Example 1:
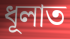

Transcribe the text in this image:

ধূলাত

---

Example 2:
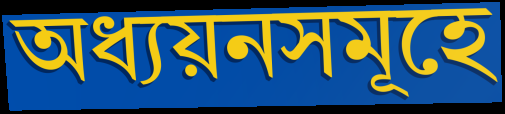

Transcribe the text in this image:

অধ্যয়নসমূহে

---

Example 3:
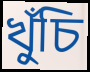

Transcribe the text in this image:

খুঁচি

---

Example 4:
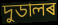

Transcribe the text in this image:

দুডালৰ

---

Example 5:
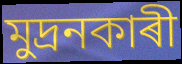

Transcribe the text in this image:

মুদ্ৰনকাৰী